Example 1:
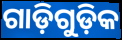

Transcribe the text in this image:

ଗାଡ଼ିଗୁଡ଼ିକ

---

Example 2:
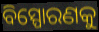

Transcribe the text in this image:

ବିସ୍ପୋରଣକୁ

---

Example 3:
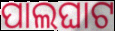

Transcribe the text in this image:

ପାଲଘାଟ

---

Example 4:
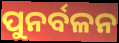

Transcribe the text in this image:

ପୁନର୍ବଳନ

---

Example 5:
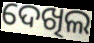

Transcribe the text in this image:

ଦେଖିଲ